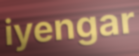
iyengar